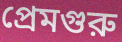
প্রেমগুরু